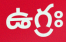
ఉగ్రః